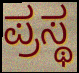
ಪ್ರಸ್ಥ